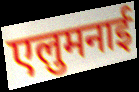
एलुमनाई